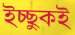
ইচ্ছুকই